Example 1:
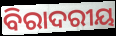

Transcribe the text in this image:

ବିରାଦରୀୟ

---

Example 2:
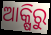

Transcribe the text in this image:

ଆକ୍ଷିରୁ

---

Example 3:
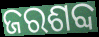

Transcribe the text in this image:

ଜରଶବ୍ଦ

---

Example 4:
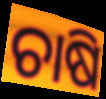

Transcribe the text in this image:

ଚାଷି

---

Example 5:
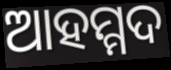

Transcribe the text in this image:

ଆହମ୍ମଦ